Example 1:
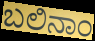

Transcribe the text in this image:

ಬಲಿನಾಂ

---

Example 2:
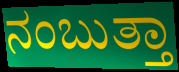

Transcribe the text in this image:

ನಂಬುತ್ತಾ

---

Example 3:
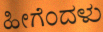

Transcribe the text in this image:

ಹೀಗೆಂದಳು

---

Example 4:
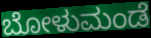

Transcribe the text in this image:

ಬೋಳುಮಂಡೆ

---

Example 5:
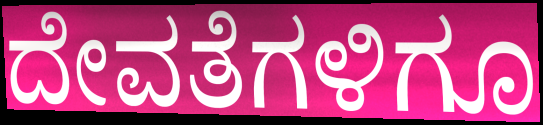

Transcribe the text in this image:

ದೇವತೆಗಳಿಗೂ